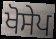
ਖੋਸੇਪ